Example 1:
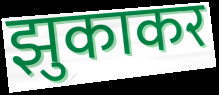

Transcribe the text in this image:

झुकाकर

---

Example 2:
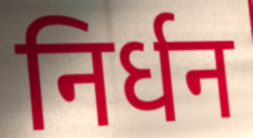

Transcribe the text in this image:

निर्धन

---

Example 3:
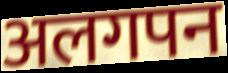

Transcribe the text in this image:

अलगपन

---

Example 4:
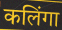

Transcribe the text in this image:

कलिंगा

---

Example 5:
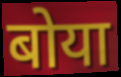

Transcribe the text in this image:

बोया